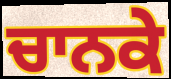
ਚਾਨਕੇ